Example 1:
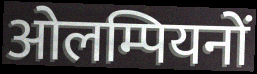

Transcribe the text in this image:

ओलम्पियनों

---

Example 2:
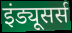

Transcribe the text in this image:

इंड्यूसर्स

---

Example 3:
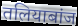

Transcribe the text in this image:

तलियाबांज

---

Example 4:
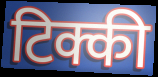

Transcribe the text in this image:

टिक्‍की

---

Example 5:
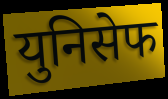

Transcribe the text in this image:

युनिसेफ